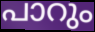
പാറും